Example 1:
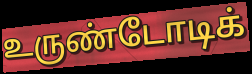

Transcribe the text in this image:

உருண்டோடிக்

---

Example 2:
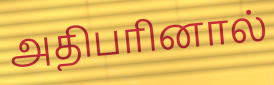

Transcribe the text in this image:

அதிபரினால்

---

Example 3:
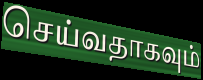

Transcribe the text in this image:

செய்வதாகவும்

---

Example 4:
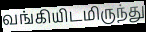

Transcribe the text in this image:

வங்கியிடமிருந்து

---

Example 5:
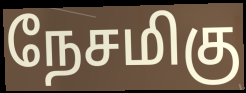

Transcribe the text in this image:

நேசமிகு